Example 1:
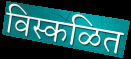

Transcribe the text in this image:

विस्कळित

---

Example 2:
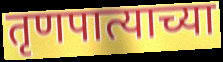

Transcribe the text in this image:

तृणपात्याच्या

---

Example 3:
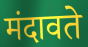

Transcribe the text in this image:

मंदावते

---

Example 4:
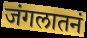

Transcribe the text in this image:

जंगलातनं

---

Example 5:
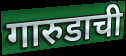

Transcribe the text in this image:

गारुडाची